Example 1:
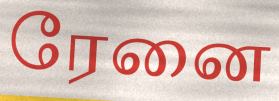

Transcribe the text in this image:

ரேனை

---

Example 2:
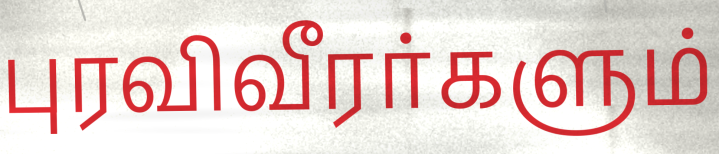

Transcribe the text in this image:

புரவிவீரர்களும்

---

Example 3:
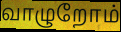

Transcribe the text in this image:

வாழுறோம்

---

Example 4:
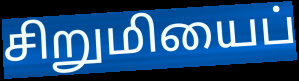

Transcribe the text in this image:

சிறுமியைப்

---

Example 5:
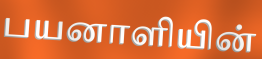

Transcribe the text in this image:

பயனாளியின்